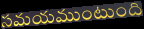
సమయముంటుంది